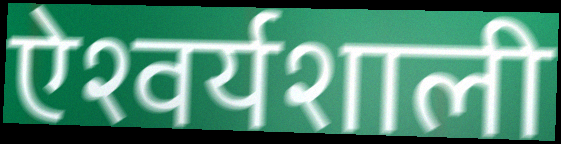
ऐश्वर्यशाली